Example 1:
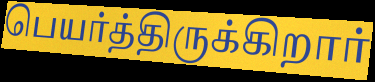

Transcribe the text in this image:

பெயர்த்திருக்கிறார்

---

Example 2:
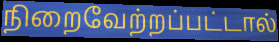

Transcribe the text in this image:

நிறைவேற்றப்பட்டால்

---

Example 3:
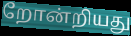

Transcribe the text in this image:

றோன்றியது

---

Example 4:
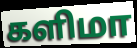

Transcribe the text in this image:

களிமா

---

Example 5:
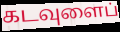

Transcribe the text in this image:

கடவுளைப்